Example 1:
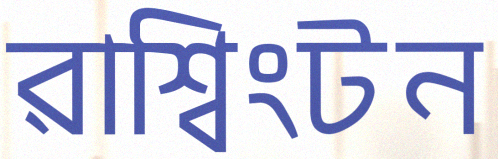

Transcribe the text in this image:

ৱাশ্বিংটন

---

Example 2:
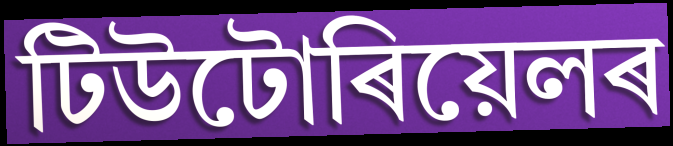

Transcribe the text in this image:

টিউটোৰিয়েলৰ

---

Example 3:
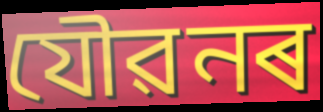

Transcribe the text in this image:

যৌৱনৰ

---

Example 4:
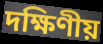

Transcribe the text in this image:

দক্ষিণীয়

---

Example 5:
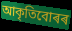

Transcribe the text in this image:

আকৃতিবোৰৰ